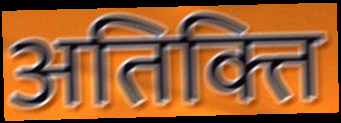
अतिक्ति